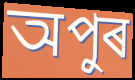
অপুৰ